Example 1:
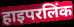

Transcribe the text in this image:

हाइपरलिंक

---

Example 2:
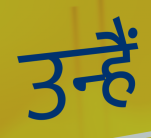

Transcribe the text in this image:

उन्‍हैं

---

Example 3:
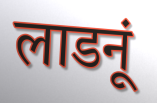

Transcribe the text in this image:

लाडनूं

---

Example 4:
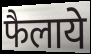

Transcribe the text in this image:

फैलाये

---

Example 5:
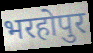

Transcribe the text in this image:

भरहोपुर